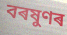
বৰষুণৰ